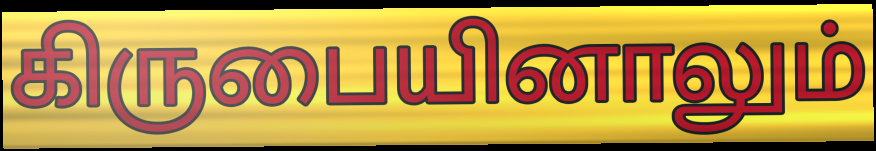
கிருபையினாலும்